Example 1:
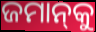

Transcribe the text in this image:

ଜମାନ୍‍କୁ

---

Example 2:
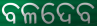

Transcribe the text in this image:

ବଳଦେବ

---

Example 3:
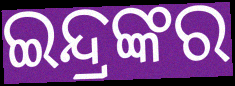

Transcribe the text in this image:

ଇନ୍ଦ୍ରଙ୍କର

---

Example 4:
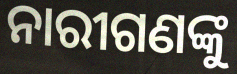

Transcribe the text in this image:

ନାରୀଗଣଙ୍କୁ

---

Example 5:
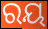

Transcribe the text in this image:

ରୟ